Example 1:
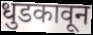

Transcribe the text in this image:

धुडकावून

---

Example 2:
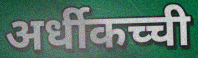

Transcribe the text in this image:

अर्धीकच्ची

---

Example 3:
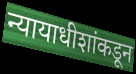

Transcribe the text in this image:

न्यायाधीशांकडून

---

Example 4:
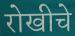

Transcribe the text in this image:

रोखीचे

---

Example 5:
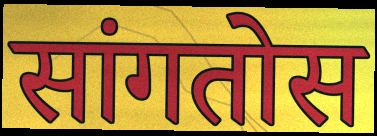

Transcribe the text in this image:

सांगतोस